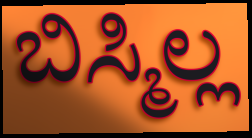
ಬಿಸ್ಮಿಲ್ಲ